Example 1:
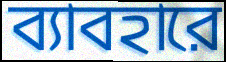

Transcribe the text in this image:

ব্যাবহারে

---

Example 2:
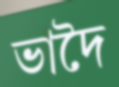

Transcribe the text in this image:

ভাদৈ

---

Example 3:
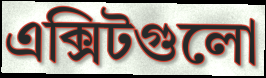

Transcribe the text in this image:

এক্সিটগুলো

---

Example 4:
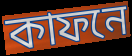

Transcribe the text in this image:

কাফনে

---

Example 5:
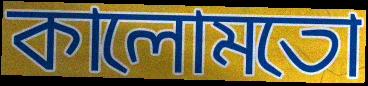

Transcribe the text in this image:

কালোমতো